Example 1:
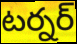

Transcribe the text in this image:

టర్నర్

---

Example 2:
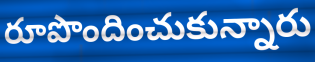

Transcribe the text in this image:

రూపొందించుకున్నారు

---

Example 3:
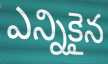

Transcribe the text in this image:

ఎన్నికైన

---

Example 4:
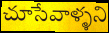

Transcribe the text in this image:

చూసేవాళ్ళని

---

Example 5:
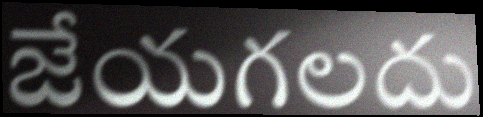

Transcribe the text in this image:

జేయగలదు